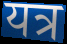
यत्र